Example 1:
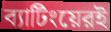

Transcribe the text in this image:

ব্যাটিংয়েরই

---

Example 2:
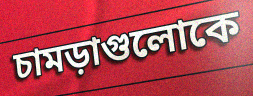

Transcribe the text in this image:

চামড়াগুলোকে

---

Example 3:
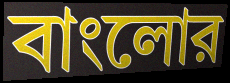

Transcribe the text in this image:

বাংলোর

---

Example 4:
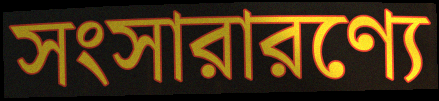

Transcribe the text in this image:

সংসারারণ্যে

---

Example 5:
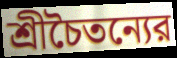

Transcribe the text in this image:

শ্রীচৈতন্যের